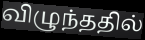
விழுந்ததில்